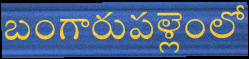
బంగారుపళ్లెంలో